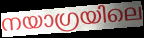
നയാഗ്രയിലെ